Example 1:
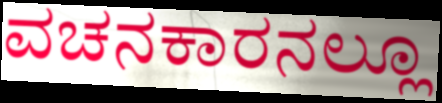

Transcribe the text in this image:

ವಚನಕಾರನಲ್ಲೂ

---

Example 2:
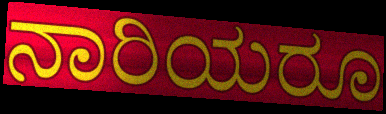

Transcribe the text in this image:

ನಾರಿಯರೂ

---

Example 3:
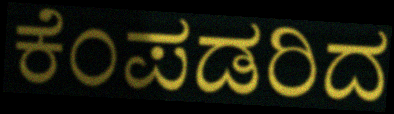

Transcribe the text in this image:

ಕೆಂಪಡರಿದ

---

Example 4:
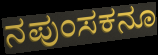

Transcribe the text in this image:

ನಪುಂಸಕನೂ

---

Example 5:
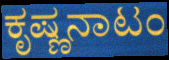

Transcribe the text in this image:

ಕೃಷ್ಣನಾಟಂ